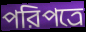
পরিপত্রে